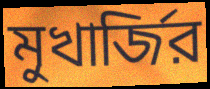
মুখার্জির